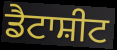
ਡੈਟਾਸ਼ੀਟ